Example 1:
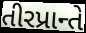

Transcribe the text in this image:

તીરપ્રાન્તે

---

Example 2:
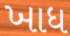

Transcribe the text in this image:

ખાધ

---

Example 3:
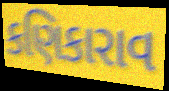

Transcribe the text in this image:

કણિકારાવ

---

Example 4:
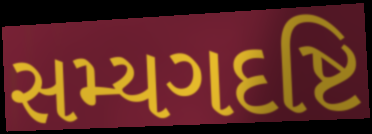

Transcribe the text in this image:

સમ્યગદષ્ટિ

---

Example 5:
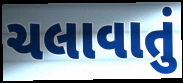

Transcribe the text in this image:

ચલાવાતું